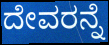
ದೇವರನ್ನೆ